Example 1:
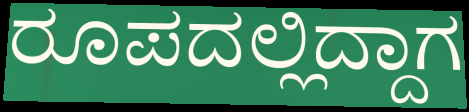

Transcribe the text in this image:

ರೂಪದಲ್ಲಿದ್ದಾಗ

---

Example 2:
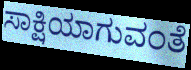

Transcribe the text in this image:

ಸಾಕ್ಷಿಯಾಗುವಂತೆ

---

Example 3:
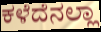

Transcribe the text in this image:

ಕಳೆದೆನಲ್ಲಾ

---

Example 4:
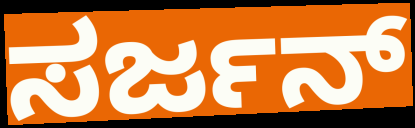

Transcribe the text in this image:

ಸರ್ಜನ್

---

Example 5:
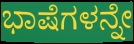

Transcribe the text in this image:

ಭಾಷೆಗಳನ್ನೇ